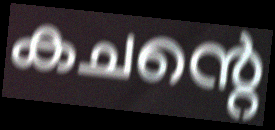
കചന്റെ